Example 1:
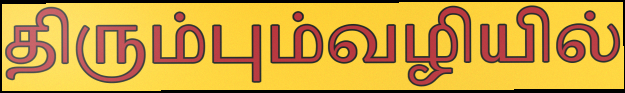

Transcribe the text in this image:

திரும்பும்வழியில்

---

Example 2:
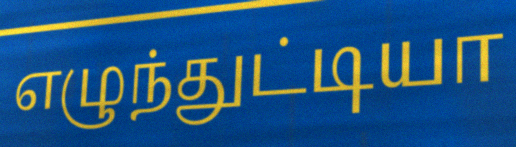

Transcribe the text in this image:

எழுந்துட்டியா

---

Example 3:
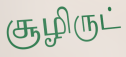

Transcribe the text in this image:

சூழிருட்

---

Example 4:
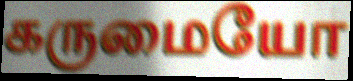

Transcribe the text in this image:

கருமையோ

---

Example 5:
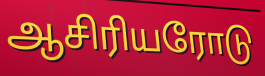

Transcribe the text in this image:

ஆசிரியரோடு